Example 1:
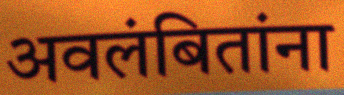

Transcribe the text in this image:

अवलंबितांना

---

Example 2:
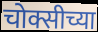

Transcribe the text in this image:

चोक्सीच्या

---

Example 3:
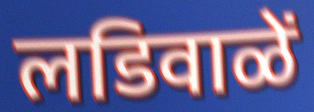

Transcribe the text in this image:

लडिवाळें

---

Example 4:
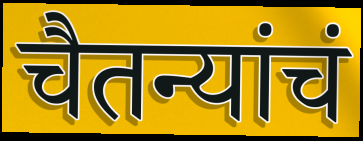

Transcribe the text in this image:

चैतन्यांचं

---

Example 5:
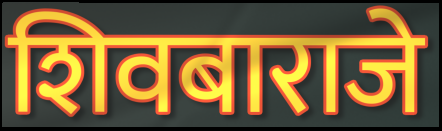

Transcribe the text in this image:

शिवबाराजे